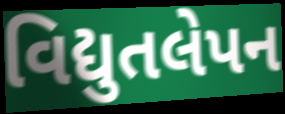
વિદ્યુતલેપન